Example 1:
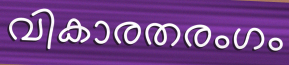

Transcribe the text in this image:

വികാരതരംഗം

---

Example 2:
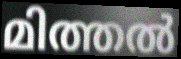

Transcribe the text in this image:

മിത്തൽ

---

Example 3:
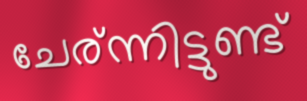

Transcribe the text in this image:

ചേര്ന്നിട്ടുണ്ട്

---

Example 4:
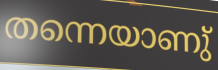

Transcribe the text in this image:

തന്നെയാണു്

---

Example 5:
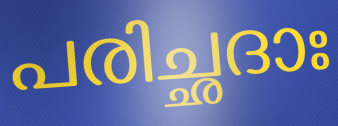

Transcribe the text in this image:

പരിച്ഛദാഃ